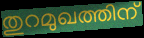
തുറമുഖത്തിന്